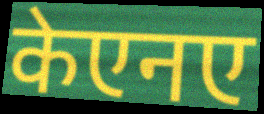
केएनए